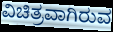
ವಿಚಿತ್ರವಾಗಿರುವ